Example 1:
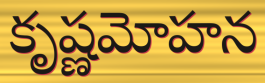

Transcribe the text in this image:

కృష్ణమోహన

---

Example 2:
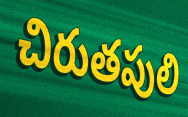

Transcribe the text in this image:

చిరుతపులి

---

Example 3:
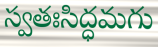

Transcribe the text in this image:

స్వతఃసిద్ధమగు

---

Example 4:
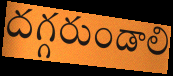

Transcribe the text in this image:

దగ్గరుండాలి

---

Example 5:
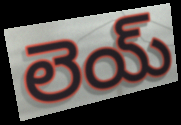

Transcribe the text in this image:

లెయ్